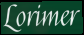
Lorimer